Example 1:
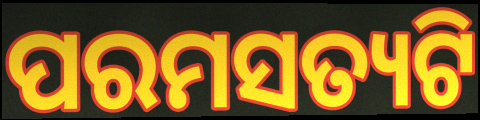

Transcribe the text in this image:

ପରମସତ୍ୟଟି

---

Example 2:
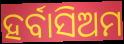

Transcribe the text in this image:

ହର୍ବାସିଅମ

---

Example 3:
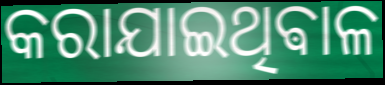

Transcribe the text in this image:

କରାଯାଇଥିଵାଳ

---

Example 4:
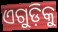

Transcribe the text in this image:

ଏଗୁଡ଼ିକୁ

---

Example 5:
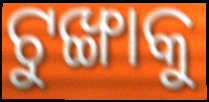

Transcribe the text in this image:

ଟୁଙ୍ଖାକୁ